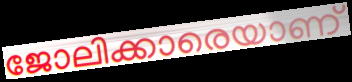
ജോലിക്കാരെയാണ്